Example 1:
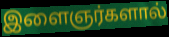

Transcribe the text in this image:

இளைஞர்களால்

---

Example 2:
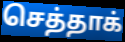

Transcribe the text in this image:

செத்தாக்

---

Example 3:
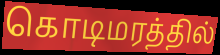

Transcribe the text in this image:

கொடிமரத்தில்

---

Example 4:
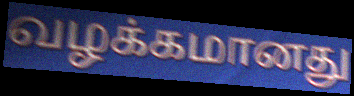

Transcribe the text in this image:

வழக்கமானது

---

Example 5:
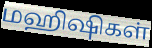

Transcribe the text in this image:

மஹிஷிகள்